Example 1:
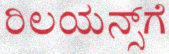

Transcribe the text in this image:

ರಿಲಯನ್ಸ್‌ಗೆ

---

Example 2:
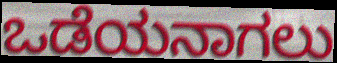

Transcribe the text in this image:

ಒಡೆಯನಾಗಲು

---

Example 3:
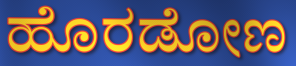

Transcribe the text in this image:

ಹೊರಡೋಣ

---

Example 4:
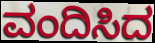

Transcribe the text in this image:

ವಂದಿಸಿದ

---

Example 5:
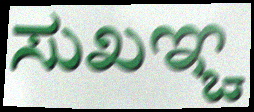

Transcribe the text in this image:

ಸುಖಞ್ಚ